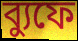
ব্যুফে